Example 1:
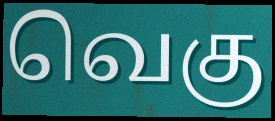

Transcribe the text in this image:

வெகு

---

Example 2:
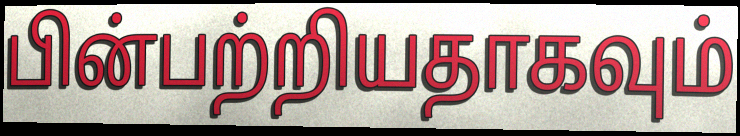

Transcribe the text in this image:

பின்பற்றியதாகவும்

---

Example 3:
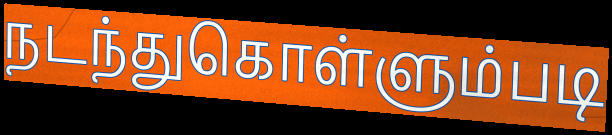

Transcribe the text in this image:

நடந்துகொள்ளும்படி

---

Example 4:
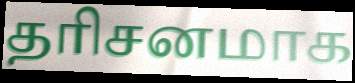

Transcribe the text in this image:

தரிசனமாக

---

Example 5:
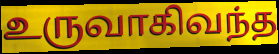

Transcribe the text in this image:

உருவாகிவந்த